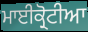
ਮਾਈਕ੍ਰੋਟੀਆ